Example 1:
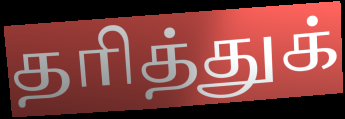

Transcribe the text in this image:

தரித்துக்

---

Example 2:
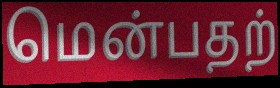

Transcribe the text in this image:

மென்பதற்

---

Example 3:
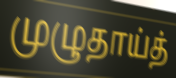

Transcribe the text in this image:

முழுதாய்த்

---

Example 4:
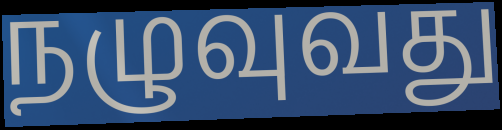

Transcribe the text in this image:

நழுவுவது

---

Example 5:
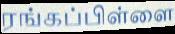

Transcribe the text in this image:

ரங்கப்பிள்ளை